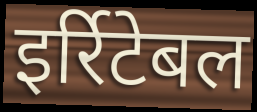
इर्रिटेबल